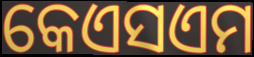
କେଏସଏମ